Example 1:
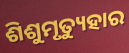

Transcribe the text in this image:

ଶିଶୁମୃତ୍ୟୁହାର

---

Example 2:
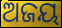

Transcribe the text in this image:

ଅଜୟ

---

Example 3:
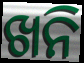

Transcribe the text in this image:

ଖନି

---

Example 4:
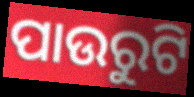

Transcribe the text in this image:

ପାଉରୁଟି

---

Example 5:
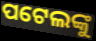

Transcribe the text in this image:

ପଟେଲଙ୍କୁ